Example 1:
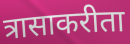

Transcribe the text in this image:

त्रासाकरीता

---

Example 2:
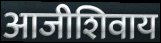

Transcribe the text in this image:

आजीशिवाय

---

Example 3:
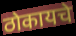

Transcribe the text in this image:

ठोकायचे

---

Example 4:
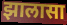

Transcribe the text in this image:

झालासा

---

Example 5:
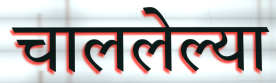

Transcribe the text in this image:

चाललेल्या